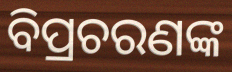
ବିପ୍ରଚରଣଙ୍କ